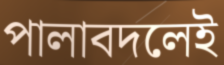
পালাবদলেই